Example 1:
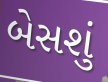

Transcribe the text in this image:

બેસશું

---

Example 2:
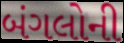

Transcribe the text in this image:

બંગલોની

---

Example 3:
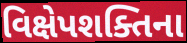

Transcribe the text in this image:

વિક્ષેપશક્તિના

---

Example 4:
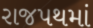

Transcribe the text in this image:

રાજપથમાં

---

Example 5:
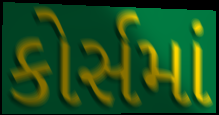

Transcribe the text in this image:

કોર્સમાં